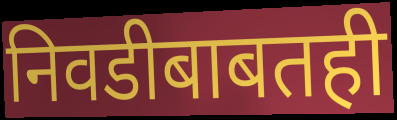
निवडीबाबतही